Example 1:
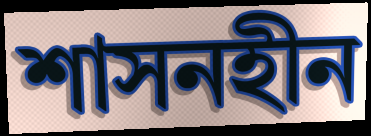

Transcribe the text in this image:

শাসনহীন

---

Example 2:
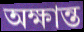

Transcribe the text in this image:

অক্ষান্ত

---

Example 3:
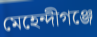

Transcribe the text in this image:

মেহেন্দীগঞ্জে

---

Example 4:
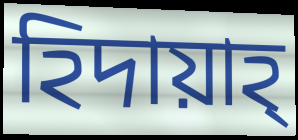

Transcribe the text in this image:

হিদায়াহ্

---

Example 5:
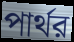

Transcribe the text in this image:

পার্থর